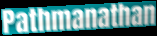
Pathmanathan